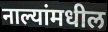
नाल्यांमधील